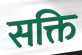
सक्ति